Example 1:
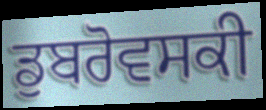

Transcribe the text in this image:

ਡੁਬਰੋਵਸਕੀ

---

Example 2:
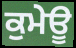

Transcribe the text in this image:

ਕੁਮੇਊ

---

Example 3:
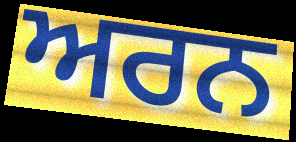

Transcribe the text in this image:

ਅਰਨ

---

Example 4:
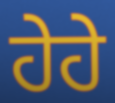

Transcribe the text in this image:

ਹੇਹੇ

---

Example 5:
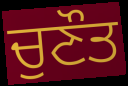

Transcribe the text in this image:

ਚੁਣੌਤ